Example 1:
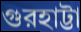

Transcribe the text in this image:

গুরহাট্টা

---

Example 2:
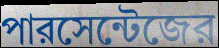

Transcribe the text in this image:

পারসেন্টেজের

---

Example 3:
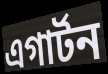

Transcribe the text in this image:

এগার্টন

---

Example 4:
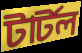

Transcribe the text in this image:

টার্টল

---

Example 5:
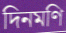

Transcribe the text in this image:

দিনমণি